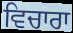
ਵਿਚਾਰਾ